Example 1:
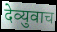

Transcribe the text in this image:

देव्युवाच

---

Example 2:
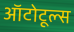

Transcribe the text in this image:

ऑटोटूल्स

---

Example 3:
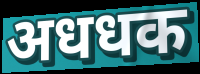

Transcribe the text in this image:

अधधक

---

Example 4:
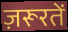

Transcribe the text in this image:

ज़रूरतें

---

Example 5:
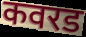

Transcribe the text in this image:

कवरड